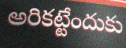
అరికట్టేందుకు